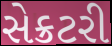
સેક્રટરી